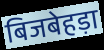
बिजबेहड़ा